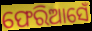
ଫେରିଆସେଁ